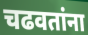
चढवतांना